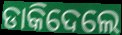
ଡାକିଦେଲେ